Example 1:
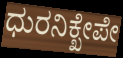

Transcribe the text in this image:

ಧುರನಿಕ್ಖೇಪೇ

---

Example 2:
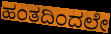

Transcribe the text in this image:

ಹಂತದಿಂದಲೇ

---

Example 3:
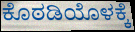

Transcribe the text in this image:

ಕೊಠಡಿಯೊಳಕ್ಕೆ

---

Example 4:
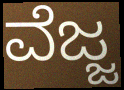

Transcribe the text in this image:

ವೆಜ್ಜ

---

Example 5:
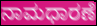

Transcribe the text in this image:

ನಾಮಧಾರಣೆ